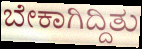
ಬೇಕಾಗಿದ್ದಿತು